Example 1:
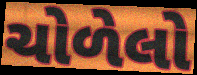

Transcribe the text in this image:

ચોળેલો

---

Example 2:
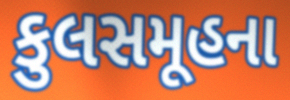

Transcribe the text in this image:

કુલસમૂહના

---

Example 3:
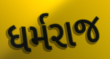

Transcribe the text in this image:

ધર્મરાજ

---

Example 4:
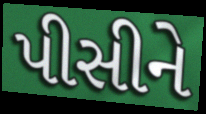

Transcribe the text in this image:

પીસીને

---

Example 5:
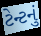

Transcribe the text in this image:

ટેન્ટનું